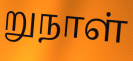
றுநாள்